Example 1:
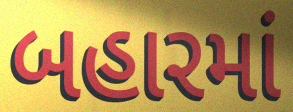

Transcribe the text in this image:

બહારમાં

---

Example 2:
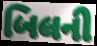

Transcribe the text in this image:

બિલની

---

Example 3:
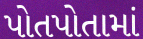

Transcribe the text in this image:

પોતપોતામાં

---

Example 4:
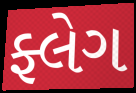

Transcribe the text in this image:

ફ્લેગ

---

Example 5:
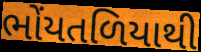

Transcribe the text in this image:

ભોંયતળિયાથી